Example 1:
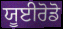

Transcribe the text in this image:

ਯੂਈਰੋਡੋ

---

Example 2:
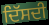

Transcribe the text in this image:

ਦਿੱਸਦੀ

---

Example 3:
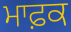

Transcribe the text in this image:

ਮਾਫ਼ਕ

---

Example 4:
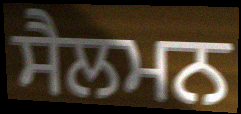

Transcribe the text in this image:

ਸੈਲਮਨ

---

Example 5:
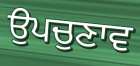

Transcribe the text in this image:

ਉਪਚੁਣਾਵ